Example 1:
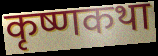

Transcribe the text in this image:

कृष्णकथा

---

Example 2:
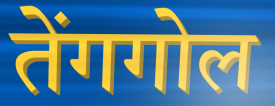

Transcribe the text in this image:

तेंगगोल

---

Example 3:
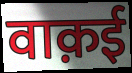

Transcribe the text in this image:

वाक़ई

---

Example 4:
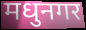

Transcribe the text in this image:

मधुनगर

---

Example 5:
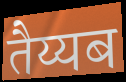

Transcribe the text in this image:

तैय्यब